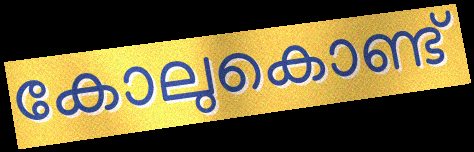
കോലുകൊണ്ട്